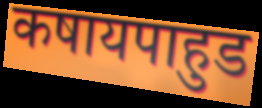
कषायपाहुड